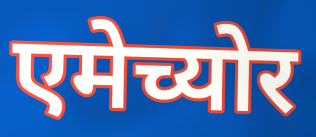
एमेच्योर